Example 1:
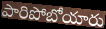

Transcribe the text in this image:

పారిపోబోయారు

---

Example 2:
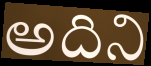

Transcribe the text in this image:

అదిని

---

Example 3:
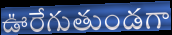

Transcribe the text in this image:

ఊరేగుతుండగా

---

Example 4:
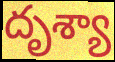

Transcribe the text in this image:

దృశ్యా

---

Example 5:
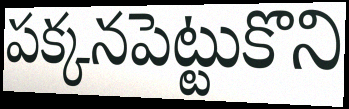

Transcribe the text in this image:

పక్కనపెట్టుకొని